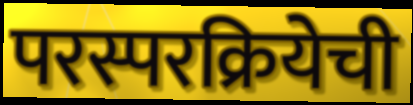
परस्परक्रियेची